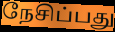
நேசிப்பது